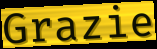
Grazie